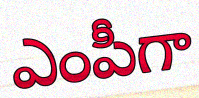
ఎంపీగా